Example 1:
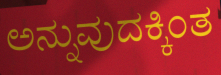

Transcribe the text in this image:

ಅನ್ನುವುದಕ್ಕಿಂತ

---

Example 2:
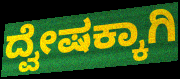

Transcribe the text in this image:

ದ್ವೇಷಕ್ಕಾಗಿ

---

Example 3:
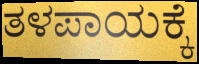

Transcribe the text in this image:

ತಳಪಾಯಕ್ಕೆ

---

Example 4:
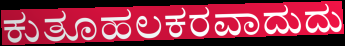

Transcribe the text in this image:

ಕುತೂಹಲಕರವಾದುದು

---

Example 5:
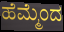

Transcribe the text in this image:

ಹೆಮ್ಮೆಂದ